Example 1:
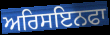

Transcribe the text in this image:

ਅਰਿਸਇਨਫਾ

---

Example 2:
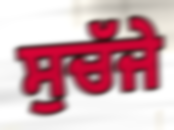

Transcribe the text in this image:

ਸੁਚੱਜੇ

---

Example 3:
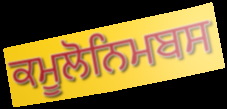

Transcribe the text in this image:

ਕਮੂਲੋਨਿਮਬਸ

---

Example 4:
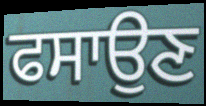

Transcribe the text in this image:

ਫਸਾਉਣ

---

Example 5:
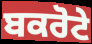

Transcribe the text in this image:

ਬਕਰੋਟੇ